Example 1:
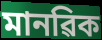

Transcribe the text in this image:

মানৱিক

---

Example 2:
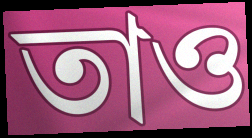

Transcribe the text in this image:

তাও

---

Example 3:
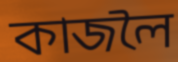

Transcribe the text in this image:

কাজলৈ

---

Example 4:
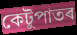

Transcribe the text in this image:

কেটুপাতৰ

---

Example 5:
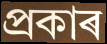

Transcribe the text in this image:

প্ৰকাৰ